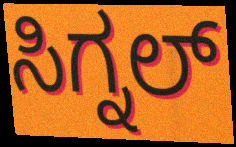
ಸಿಗ್ನಲ್